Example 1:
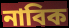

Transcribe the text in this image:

নাবিক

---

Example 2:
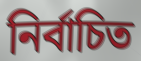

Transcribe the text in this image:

নির্বাচিত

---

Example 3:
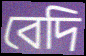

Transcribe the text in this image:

বেদি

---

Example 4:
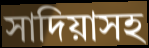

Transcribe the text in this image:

সাদিয়াসহ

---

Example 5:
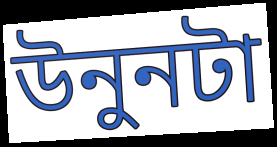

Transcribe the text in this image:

উনুনটা